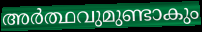
അർത്ഥവുമുണ്ടാകും